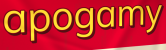
apogamy